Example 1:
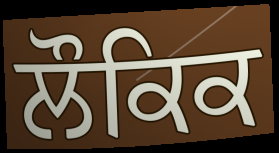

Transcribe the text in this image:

ਲੌਕਿਕ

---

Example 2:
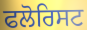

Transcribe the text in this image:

ਫਲੋਰਿਸਟ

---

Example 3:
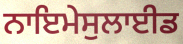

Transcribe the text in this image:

ਨਾਇਮੇਸੁਲਾਈਡ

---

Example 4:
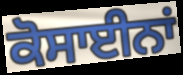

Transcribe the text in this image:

ਕੋਸਾਈਨਾਂ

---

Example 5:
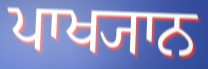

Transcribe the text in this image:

ਪਾਖ੍ਯਾਨ